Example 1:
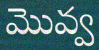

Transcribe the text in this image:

మొవ్వ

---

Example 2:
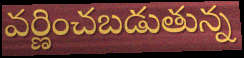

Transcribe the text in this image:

వర్ణించబడుతున్న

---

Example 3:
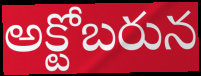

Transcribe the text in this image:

అక్టోబరున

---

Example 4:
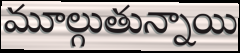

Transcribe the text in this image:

మూల్గుతున్నాయి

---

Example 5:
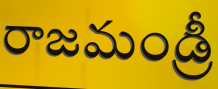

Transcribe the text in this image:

రాజమండ్రీ